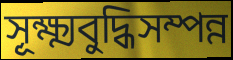
সূক্ষ্মবুদ্ধিসম্পন্ন